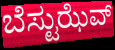
ಬೆಸ್ಟುಝೆವ್